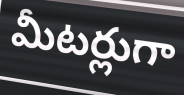
మీటర్లుగా